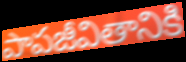
పాపజీవితానికి